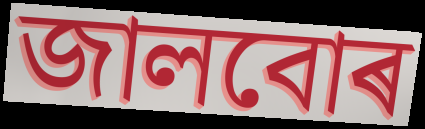
জালবোৰ